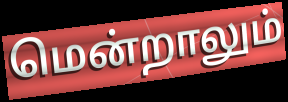
மென்றாலும்